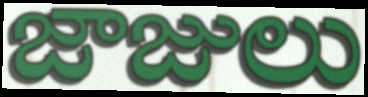
జాజులు